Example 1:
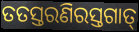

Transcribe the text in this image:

ତତସ୍ତରଣିରସ୍ତଗାତ୍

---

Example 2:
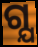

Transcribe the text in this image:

ଗ୍ଯ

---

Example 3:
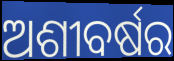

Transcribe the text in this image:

ଅଶୀବର୍ଷର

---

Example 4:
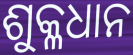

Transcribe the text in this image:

ଶୁକ୍ଳଧାନ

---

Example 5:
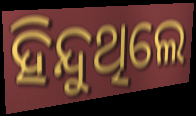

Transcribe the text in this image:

ହିନ୍ଦୁଥିଲେ